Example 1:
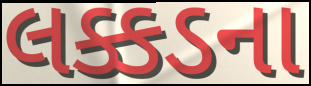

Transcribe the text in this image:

લક્કડના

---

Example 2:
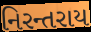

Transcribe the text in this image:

નિરન્તરાય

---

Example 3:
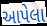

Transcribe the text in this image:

આપેલા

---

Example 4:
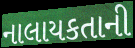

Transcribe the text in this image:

નાલાયકતાની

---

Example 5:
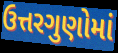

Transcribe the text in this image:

ઉત્તરગુણોમાં